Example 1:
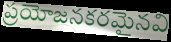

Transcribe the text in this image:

ప్రయోజనకరమైనవి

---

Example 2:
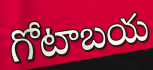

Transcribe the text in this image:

గోటాబయ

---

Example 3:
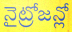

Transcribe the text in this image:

నైట్రోజన్లో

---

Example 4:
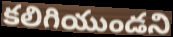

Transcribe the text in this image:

కలిగియుండని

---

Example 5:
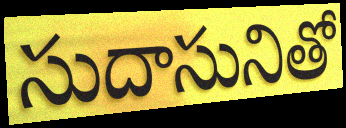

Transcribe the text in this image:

సుదాసునితో